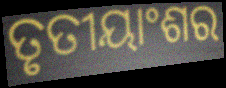
ତୃତୀୟାଂଶର